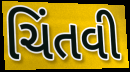
ચિંતવી